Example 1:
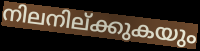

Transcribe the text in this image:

നിലനില്ക്കുകയും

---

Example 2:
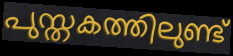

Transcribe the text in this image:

പുസ്തകത്തിലുണ്ട്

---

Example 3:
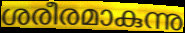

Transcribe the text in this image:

ശരീരമാകുന്നു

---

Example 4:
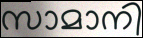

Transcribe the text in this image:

സാമാനി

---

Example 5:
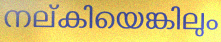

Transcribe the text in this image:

നല്‌കിയെങ്കിലും